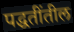
पद्धतींतील